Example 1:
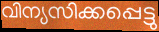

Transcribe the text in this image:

വിന്യസിക്കപ്പെട്ടു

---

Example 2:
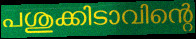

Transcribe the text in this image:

പശുക്കിടാവിന്റെ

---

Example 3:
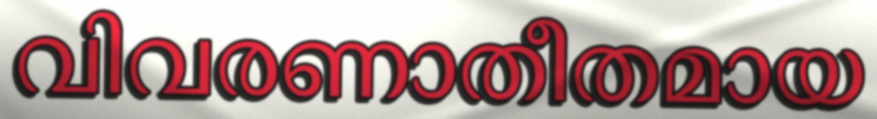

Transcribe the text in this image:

വിവരണാതീതമായ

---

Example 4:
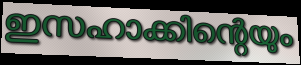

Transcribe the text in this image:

ഇസഹാക്കിന്റെയും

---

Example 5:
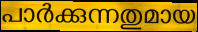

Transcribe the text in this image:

പാർക്കുന്നതുമായ